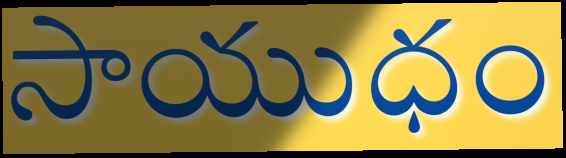
సాయుధం